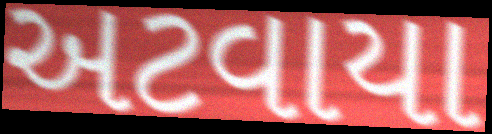
અટવાયા